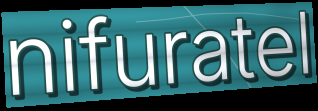
nifuratel